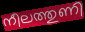
നീലത്തുണി